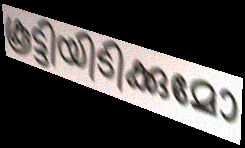
കൂട്ടിയിടിക്കുമോ